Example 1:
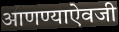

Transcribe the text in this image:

आणण्याऐवजी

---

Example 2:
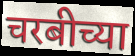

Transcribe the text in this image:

चरबीच्या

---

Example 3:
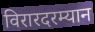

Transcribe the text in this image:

विरारदरम्यान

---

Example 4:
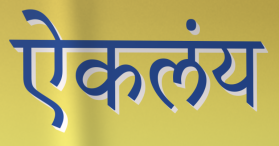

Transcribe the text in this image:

ऐकलंय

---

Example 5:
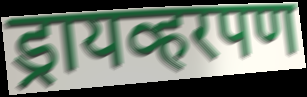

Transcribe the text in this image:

ड्रायव्हरपण